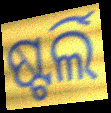
ଷ୍ଟର୍ଲି